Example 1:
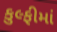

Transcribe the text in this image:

કુલ્ફીમાં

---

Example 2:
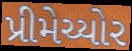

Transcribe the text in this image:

પ્રીમેચ્યોર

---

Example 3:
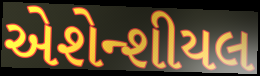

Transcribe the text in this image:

એશેન્શીયલ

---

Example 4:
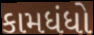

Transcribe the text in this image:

કામધંધો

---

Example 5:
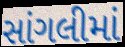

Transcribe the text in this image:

સાંગલીમાં